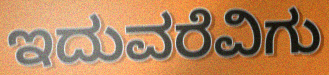
ಇದುವರೆವಿಗು